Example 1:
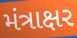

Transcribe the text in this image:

મંત્રાક્ષર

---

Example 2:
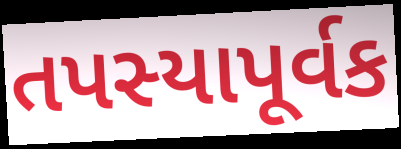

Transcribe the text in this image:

તપસ્યાપૂર્વક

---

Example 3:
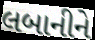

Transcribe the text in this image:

લબાનીને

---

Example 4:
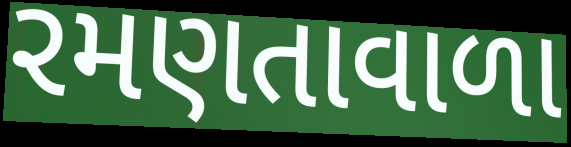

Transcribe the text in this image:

રમણતાવાળા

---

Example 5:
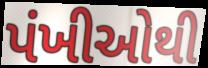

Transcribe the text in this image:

પંખીઓથી